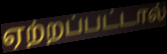
ஏற்றப்பட்டால்